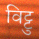
विट्टु